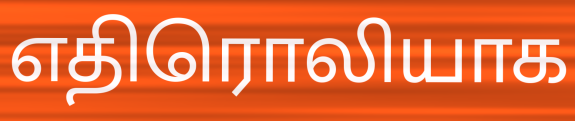
எதிரொலியாக